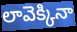
లావెక్కినా